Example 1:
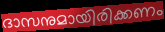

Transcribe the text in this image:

ദാസനുമായിരിക്കണം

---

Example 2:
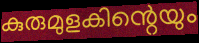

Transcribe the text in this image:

കുരുമുളകിന്റെയും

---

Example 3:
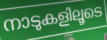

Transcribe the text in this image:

നാടുകളിലൂടെ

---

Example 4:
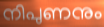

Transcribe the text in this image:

നിപുണനും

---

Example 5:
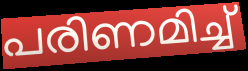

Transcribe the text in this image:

പരിണമിച്ച്